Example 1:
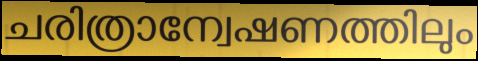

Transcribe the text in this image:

ചരിത്രാന്വേഷണത്തിലും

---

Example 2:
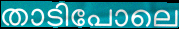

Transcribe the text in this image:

താടിപോലെ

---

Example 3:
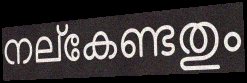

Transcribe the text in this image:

നല്കേണ്ടതും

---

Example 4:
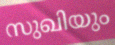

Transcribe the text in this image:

സുഖിയും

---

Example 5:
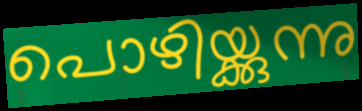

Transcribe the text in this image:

പൊഴിയ്ക്കുന്നു